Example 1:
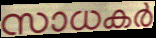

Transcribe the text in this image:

സാധകർ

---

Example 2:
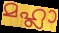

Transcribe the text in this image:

മഹ്ലാ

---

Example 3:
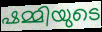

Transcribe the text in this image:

ഷമ്മിയുടെ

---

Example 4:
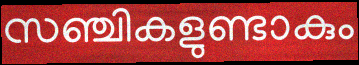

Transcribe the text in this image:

സഞ്ചികളുണ്ടാകും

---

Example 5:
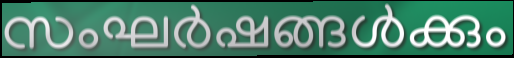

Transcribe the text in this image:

സംഘർഷങ്ങൾക്കും